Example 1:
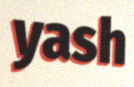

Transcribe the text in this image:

yash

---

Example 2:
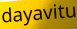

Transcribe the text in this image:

dayavitu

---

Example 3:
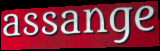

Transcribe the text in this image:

assange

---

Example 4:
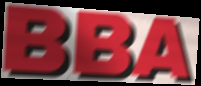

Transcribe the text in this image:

BBA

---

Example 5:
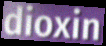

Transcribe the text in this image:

dioxin